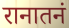
रानातनं